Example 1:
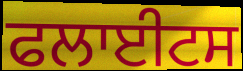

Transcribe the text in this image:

ਫਲਾਈਟਸ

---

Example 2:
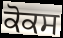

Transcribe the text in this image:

ਕੋਕਸ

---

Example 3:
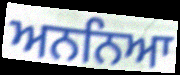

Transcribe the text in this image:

ਅਨਨਿਆ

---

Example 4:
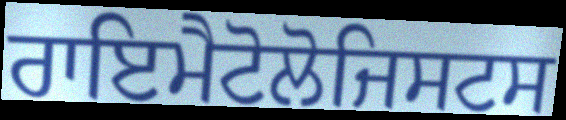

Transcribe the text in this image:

ਰਾਇਮੈਟੋਲੋਜਿਸਟਸ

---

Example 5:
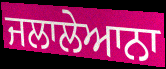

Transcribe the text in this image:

ਜਲਾਲੇਆਨਾ